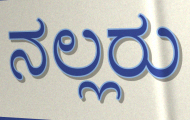
ನಲ್ಲರು